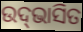
ଉଦ୍‍ଭାସିତ